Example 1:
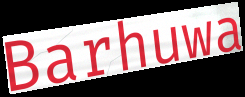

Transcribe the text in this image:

Barhuwa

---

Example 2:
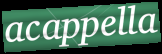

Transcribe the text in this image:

acappella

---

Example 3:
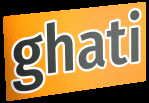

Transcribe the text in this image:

ghati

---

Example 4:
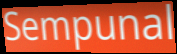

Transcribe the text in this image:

Sempunal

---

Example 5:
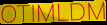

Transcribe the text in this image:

OTIMLDM